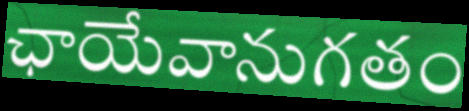
ఛాయేవానుగతం